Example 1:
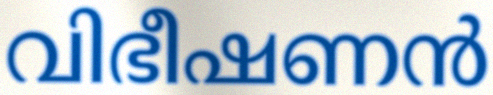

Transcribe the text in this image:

വിഭീഷണൻ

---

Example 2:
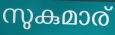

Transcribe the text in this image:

സുകുമാര്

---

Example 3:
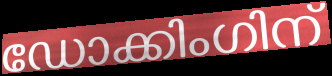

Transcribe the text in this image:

ഡോക്കിംഗിന്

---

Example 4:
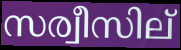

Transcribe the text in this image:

സര്വീസില്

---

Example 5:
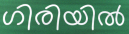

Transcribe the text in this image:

ഗിരിയിൽ